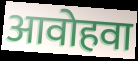
आवोहवा